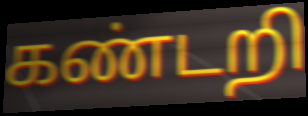
கண்டறி